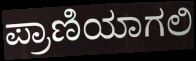
ಪ್ರಾಣಿಯಾಗಲಿ